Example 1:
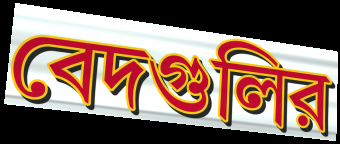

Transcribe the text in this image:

বেদগুলির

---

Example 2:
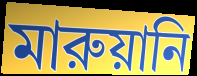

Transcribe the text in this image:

মারুয়ানি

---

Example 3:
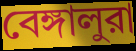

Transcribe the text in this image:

বেঙ্গালুরা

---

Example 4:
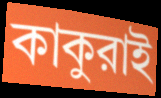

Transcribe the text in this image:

কাকুরাই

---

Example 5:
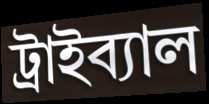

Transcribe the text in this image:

ট্রাইব্যাল